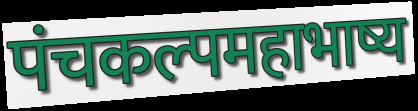
पंचकल्पमहाभाष्य